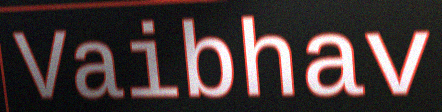
Vaibhav